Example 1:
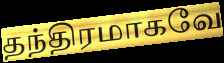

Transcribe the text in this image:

தந்திரமாகவே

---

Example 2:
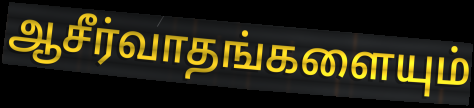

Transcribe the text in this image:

ஆசீர்வாதங்களையும்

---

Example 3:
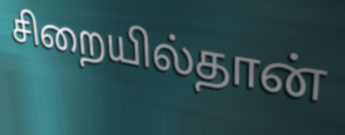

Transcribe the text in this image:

சிறையில்தான்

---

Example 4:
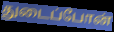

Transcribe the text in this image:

துடைப்போன்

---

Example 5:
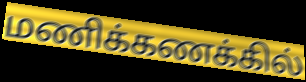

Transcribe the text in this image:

மணிக்கணக்கில்